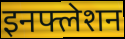
इनफ्लेशन